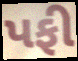
પફી